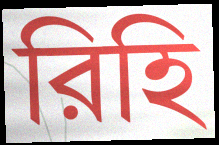
রিহি